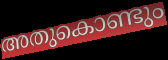
അതുകൊണ്ടും